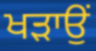
ਖੜਾਉਂ